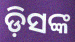
ଡ଼ିସଙ୍କ